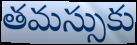
తమస్సుకు